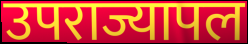
उपराज्यापल